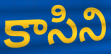
కాసిని